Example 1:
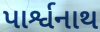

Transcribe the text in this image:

પાર્શ્વનાથ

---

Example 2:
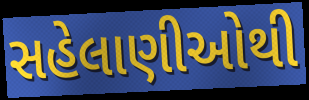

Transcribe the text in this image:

સહેલાણીઓથી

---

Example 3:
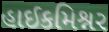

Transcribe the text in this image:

હાઈકમિશ્નર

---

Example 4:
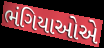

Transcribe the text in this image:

ભંગિયાઓએ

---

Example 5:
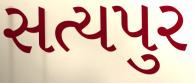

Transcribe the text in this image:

સત્યપુર